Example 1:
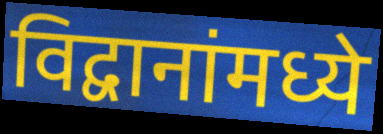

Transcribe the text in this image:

विद्वानांमध्ये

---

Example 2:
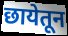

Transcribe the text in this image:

छायेतून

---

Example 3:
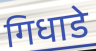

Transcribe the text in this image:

गिधाडे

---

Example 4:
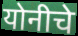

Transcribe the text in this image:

योनीचे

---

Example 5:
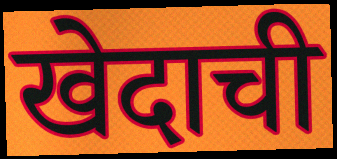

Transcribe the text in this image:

खेदाची